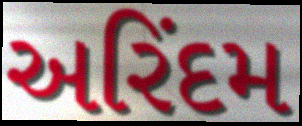
અરિંદમ